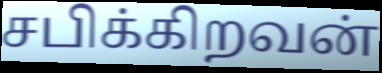
சபிக்கிறவன்